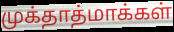
முக்தாத்மாக்கள்